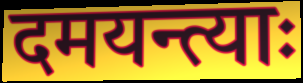
दमयन्त्याः